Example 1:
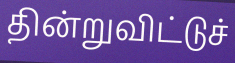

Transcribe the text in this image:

தின்றுவிட்டுச்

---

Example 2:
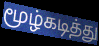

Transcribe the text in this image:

மூழ்கடித்து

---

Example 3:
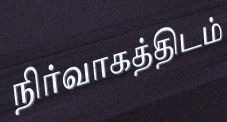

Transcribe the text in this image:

நிர்வாகத்திடம்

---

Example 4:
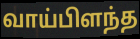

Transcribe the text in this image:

வாய்பிளந்த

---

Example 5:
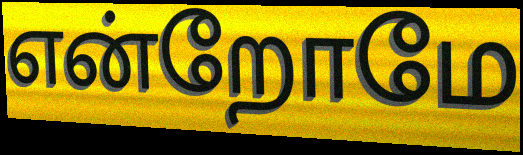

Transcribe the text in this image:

என்றோமே